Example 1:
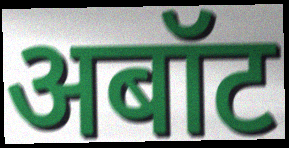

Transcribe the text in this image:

अबॉट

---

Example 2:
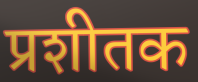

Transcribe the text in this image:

प्रशीतक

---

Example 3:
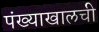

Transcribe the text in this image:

पंख्याखालची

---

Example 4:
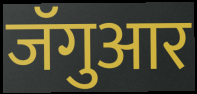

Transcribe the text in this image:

जॅगुआर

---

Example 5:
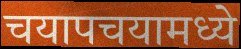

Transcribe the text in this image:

चयापचयामध्ये